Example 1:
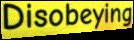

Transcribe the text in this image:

Disobeying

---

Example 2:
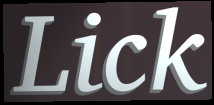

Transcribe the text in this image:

Lick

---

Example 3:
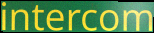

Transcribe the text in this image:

intercom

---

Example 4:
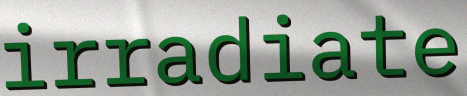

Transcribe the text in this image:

irradiate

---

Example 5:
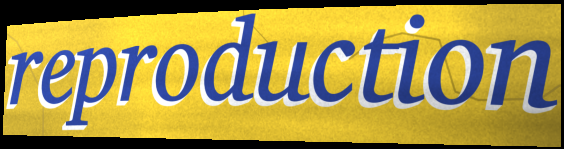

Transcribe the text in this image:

reproduction